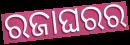
ରଜାଘରର